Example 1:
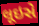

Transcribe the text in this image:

લૂઇસે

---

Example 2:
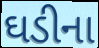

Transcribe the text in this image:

ઘડીના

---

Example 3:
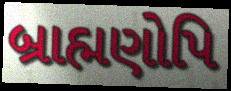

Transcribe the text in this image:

બ્રાહ્મણોપિ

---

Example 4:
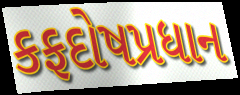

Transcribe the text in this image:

કફદોષપ્રધાન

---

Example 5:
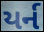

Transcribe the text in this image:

યર્ન